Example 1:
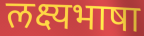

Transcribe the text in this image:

लक्ष्यभाषा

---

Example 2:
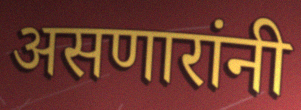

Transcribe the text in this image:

असणारांनी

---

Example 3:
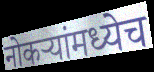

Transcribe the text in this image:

नोकऱ्यांमध्येच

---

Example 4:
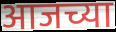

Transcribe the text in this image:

आजच्या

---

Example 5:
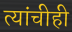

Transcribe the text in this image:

त्यांचीही